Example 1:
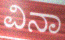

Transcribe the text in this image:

ವಿನಾ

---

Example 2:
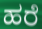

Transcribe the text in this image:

ಹರೆ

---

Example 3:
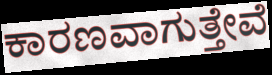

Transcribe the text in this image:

ಕಾರಣವಾಗುತ್ತೇವೆ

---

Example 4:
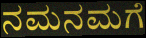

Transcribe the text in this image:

ನಮನಮಗೆ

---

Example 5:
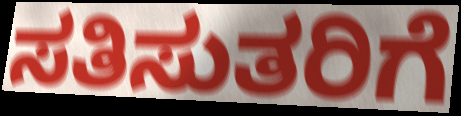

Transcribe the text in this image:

ಸತಿಸುತರಿಗೆ